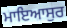
ਮਾਇਆਸੁਰ